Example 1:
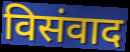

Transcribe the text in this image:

विसंवाद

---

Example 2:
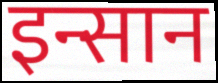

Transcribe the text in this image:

इन्सान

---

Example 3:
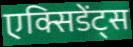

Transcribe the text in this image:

एक्सिडेंट्स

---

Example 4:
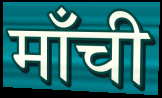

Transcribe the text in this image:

माँची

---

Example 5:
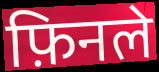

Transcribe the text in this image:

फ़िनले